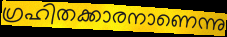
ഗ്രഹിതക്കാരനാണെന്നു